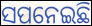
ସପନେଇଛି